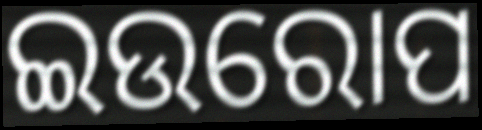
ଇଉରୋପ